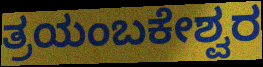
ತ್ರಯಂಬಕೇಶ್ವರ